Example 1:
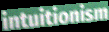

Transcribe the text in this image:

intuitionism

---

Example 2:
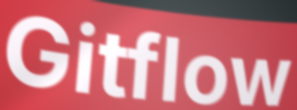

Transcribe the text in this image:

Gitflow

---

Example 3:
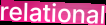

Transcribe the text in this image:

relational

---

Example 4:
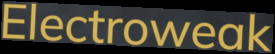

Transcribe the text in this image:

Electroweak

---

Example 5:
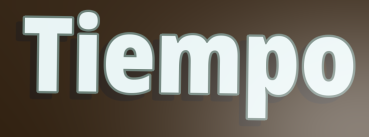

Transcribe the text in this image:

Tiempo